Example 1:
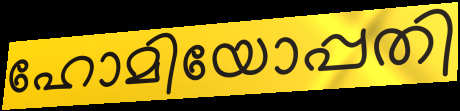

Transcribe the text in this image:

ഹോമിയോപ്പതി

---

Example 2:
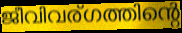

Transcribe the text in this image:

ജീവിവര്ഗത്തിന്റെ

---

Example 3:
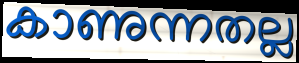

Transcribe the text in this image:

കാണുന്നതല്ല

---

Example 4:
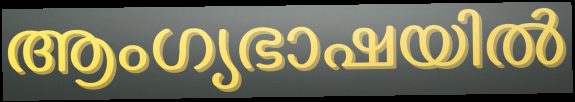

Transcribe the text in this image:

ആംഗ്യഭാഷയിൽ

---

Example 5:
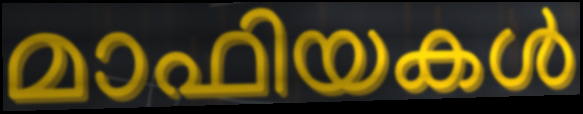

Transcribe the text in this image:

മാഫിയകൾ